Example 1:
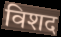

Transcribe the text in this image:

विशद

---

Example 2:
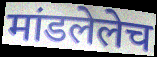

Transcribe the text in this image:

मांडलेलेच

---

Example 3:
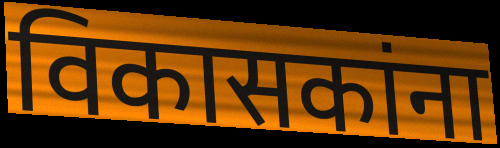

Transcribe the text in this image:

विकासकांना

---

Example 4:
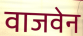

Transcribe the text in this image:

वाजवेन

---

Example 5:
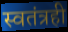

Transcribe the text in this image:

स्वतंत्रही